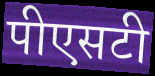
पीएसटी